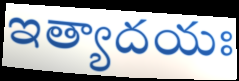
ఇత్యాదయః